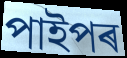
পাইপৰ